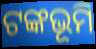
ଟଙ୍କଭୂମି